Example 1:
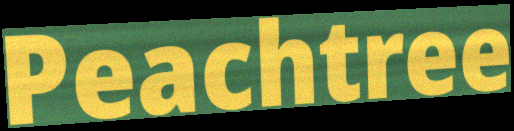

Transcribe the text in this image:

Peachtree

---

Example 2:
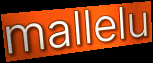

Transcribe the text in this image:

mallelu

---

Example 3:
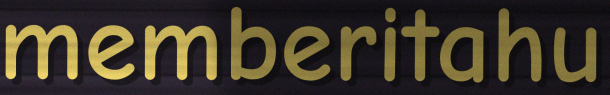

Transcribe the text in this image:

memberitahu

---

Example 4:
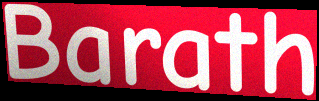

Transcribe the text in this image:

Barath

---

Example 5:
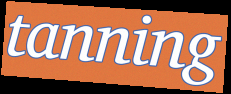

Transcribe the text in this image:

tanning